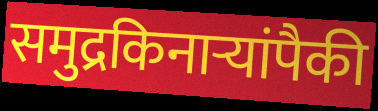
समुद्रकिनाऱ्यांपैकी